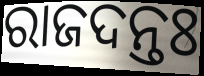
ରାଜଦନ୍ତଃ